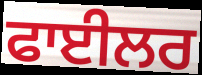
ਫਾਈਲਰ